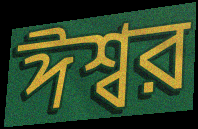
ঈশ্বর